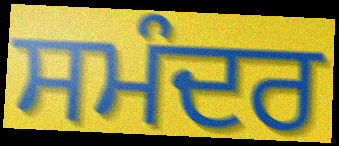
ਸਮੰਦਰ